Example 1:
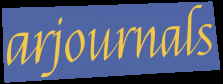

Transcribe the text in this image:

arjournals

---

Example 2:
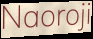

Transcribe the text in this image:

Naoroji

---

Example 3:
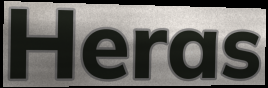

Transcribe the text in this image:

Heras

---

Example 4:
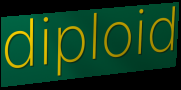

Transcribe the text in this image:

diploid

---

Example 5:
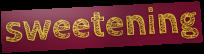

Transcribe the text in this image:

sweetening